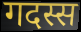
गदस्स